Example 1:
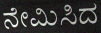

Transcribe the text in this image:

ನೇಮಿಸಿದ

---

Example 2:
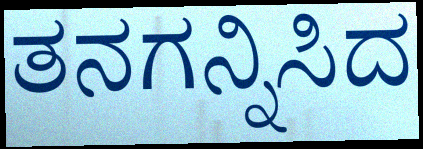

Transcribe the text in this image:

ತನಗನ್ನಿಸಿದ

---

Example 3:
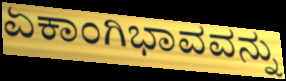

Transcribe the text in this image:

ಏಕಾಂಗಿಭಾವವನ್ನು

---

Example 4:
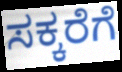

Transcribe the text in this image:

ಸಕ್ಕರೆಗೆ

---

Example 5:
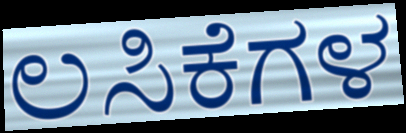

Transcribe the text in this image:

ಲಸಿಕೆಗಳ